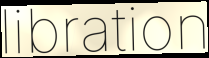
libration